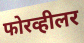
फोरव्हीलर